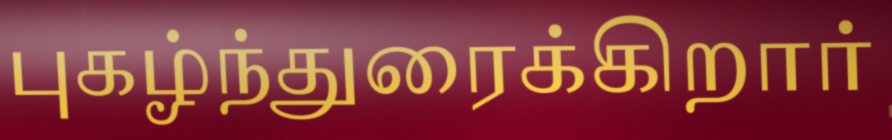
புகழ்ந்துரைக்கிறார்